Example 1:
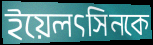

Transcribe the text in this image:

ইয়েলৎসিনকে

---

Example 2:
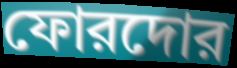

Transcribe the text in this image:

ফোরদোর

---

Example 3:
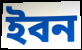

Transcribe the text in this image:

ইবন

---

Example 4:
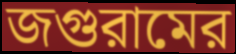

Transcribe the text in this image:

জগুরামের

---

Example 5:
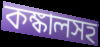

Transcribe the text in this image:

কঙ্কালসহ